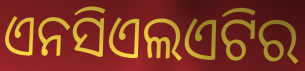
ଏନସିଏଲଏଟିର